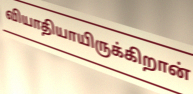
வியாதியாயிருக்கிறான்